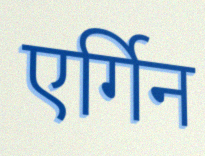
एर्गिन